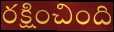
రక్షించింది